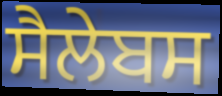
ਸੈਲੇਬਸ